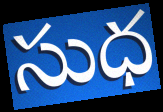
సుధ